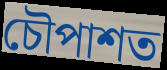
চৌপাশত